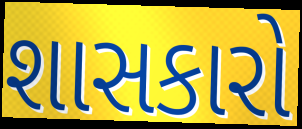
શાસકારો